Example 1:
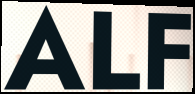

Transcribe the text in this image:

ALF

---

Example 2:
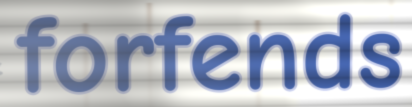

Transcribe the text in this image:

forfends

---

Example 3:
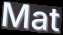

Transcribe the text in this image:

Mat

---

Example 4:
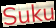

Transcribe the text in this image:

Suku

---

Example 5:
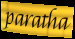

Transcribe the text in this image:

paratha